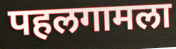
पहलगामला